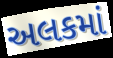
અલકમાં